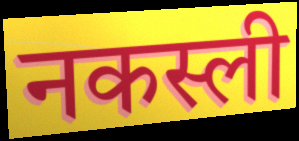
नकस्ली